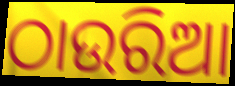
ଠାଉରିଆ